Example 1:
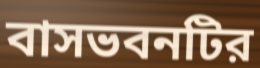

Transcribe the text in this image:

বাসভবনটির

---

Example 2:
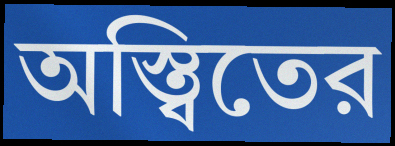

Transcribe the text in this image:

অস্ত্বিতের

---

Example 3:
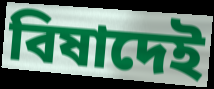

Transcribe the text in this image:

বিষাদেই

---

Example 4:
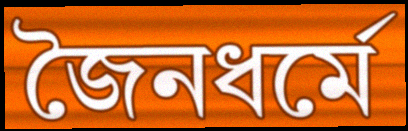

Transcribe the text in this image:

জৈনধর্মে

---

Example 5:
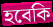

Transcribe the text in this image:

হবেকি